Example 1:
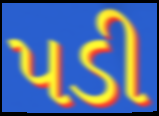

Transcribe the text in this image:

પડી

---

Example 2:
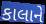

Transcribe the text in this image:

કાલાને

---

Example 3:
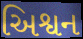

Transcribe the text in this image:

અિશ્વન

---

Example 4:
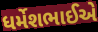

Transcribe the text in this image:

ધર્મેશભાઈએ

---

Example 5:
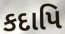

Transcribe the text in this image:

કદાપિ